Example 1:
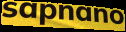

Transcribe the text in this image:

sapnano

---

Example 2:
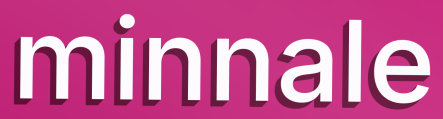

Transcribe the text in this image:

minnale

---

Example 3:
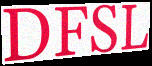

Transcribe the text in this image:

DFSL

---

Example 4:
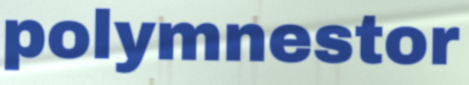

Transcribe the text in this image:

polymnestor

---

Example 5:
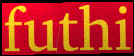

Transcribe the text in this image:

futhi